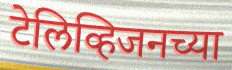
टेलिव्हिजनच्या